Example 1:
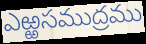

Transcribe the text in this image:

ఎఱ్ఱసముద్రము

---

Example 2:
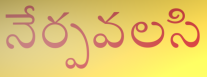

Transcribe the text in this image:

నేర్పవలసి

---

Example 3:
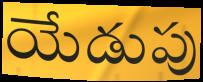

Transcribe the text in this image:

యేడుపు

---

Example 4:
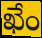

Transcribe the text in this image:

ఖేం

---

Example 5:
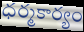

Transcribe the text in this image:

ధర్మకార్యం